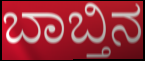
ಬಾಬ್ತಿನ